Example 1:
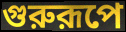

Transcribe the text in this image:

গুরুরূপে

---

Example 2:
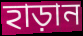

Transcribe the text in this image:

হাড়ান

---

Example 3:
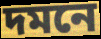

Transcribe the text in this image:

দমনে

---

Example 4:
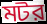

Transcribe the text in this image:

মটর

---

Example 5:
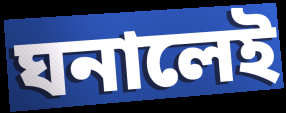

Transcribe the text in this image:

ঘনালেই